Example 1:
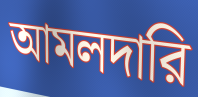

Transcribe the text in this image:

আমলদারি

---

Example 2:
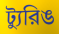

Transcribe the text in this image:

ট্যুরিঙ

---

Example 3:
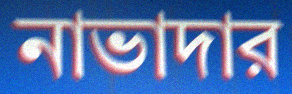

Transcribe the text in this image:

নাভাদার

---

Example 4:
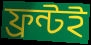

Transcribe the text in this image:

ফ্রন্টই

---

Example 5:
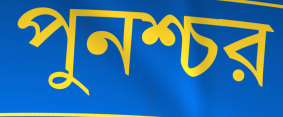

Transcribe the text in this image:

পুনশ্চর